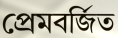
প্রেমবর্জিত